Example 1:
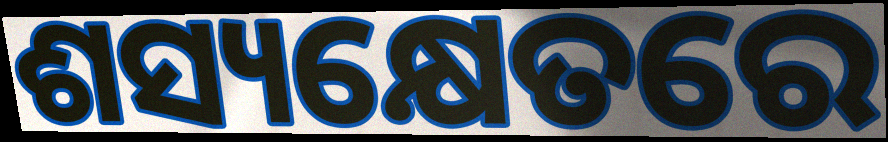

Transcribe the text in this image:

ଶସ୍ୟକ୍ଷେତରେ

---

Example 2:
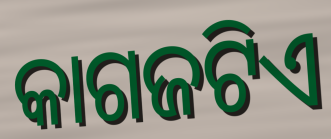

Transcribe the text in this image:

କାଗଜଟିଏ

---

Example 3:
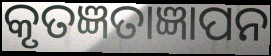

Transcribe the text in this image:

କୃତଜ୍ଞତାଜ୍ଞାପନ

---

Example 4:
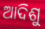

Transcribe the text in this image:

ଆଦିଶୁ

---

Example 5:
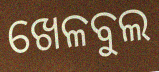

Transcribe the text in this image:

ଖେଳବୁଲ